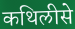
कथिलीसे